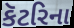
કૅટરિના